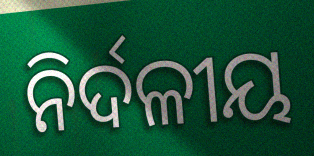
ନିର୍ଦଳୀୟ